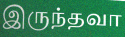
இருந்தவா